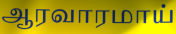
ஆரவாரமாய்